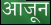
आजून